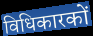
विधिकारकों